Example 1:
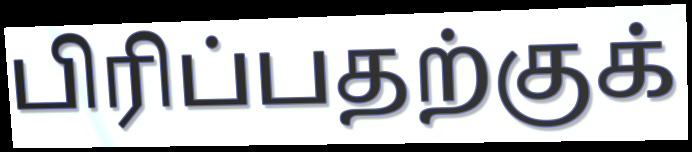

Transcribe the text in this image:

பிரிப்பதற்குக்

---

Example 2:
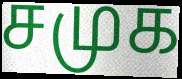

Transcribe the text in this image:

சமுக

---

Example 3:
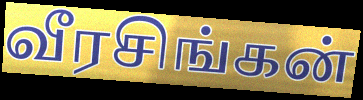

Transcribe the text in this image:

வீரசிங்கன்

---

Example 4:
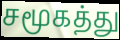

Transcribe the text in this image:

சமூகத்து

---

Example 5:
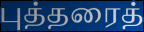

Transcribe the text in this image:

புத்தரைத்